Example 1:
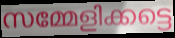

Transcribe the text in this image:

സമ്മേളിക്കട്ടെ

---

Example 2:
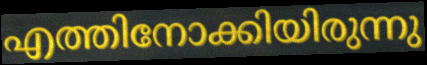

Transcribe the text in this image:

എത്തിനോക്കിയിരുന്നു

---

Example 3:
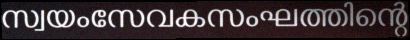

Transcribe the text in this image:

സ്വയംസേവകസംഘത്തിന്റെ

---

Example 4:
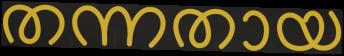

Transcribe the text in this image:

തന്നതായ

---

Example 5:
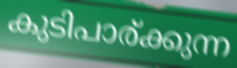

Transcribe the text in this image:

കുടിപാര്ക്കുന്ന